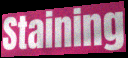
Staining